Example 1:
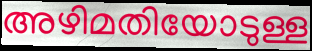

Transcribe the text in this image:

അഴിമതിയോടുള്ള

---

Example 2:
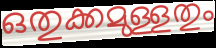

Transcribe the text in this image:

ഒതുക്കമുള്ളതും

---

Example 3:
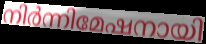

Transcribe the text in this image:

നിർന്നിമേഷനായി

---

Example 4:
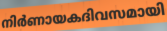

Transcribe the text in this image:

നിർണായകദിവസമായി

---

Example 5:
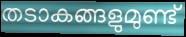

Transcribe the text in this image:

തടാകങ്ങളുമുണ്ട്